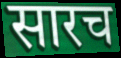
सारच